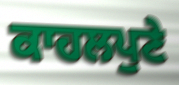
ਕਾਹਲਪੁਣੇ